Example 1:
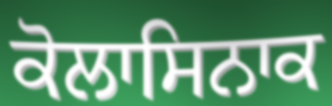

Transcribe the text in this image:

ਕੋਲਾਸਿਨਾਕ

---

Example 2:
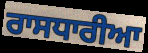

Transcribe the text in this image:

ਰਾਸਧਾਰੀਆ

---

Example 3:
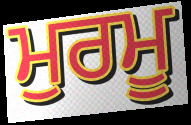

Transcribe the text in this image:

ਮੁਰਮੂ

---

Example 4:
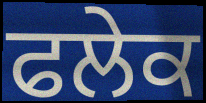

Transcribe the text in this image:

ਫਲੇਕ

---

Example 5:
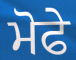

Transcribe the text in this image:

ਮੋਫੇ